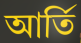
আর্তি